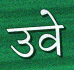
उवे